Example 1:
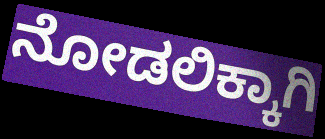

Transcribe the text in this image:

ನೋಡಲಿಕ್ಕಾಗಿ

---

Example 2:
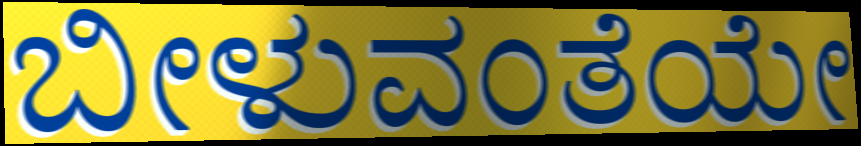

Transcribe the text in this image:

ಬೀಳುವಂತೆಯೇ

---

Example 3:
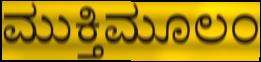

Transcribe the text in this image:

ಮುಕ್ತಿಮೂಲಂ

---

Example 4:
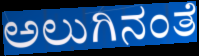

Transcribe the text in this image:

ಅಲುಗಿನಂತೆ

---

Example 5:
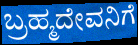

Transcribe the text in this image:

ಬ್ರಹ್ಮದೇವನಿಗೆ